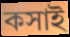
কসাই